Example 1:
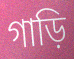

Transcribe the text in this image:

গাড়ি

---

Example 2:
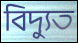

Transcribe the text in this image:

বিদ্যুত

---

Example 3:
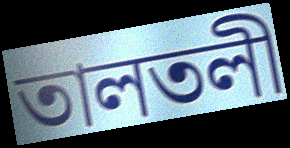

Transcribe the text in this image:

তালতলী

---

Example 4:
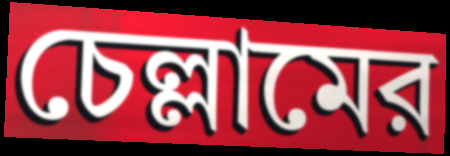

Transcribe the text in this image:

চেল্লামের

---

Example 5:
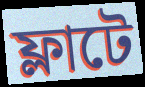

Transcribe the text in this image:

ফ্লাটে